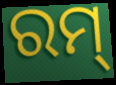
ରମ୍